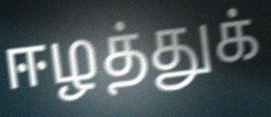
ஈழத்துக்